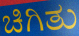
ಚಿಗಿತು